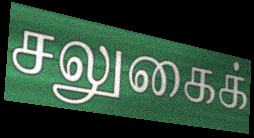
சலுகைக்